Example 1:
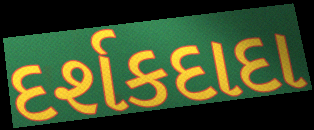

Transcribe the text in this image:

દર્શકદાદા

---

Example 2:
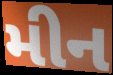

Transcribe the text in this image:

મીન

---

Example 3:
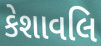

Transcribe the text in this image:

કેશાવલિ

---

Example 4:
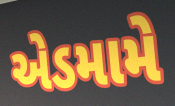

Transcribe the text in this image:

એડમામે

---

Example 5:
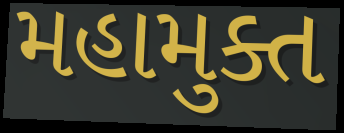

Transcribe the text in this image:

મહામુક્ત